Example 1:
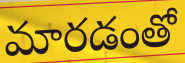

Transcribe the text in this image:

మారడంతో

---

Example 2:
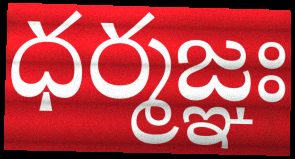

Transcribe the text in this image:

ధర్మజ్ఞః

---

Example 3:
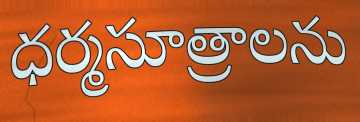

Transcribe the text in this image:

ధర్మసూత్రాలను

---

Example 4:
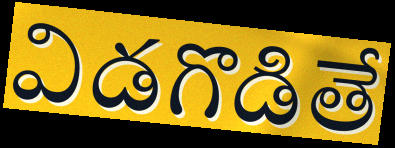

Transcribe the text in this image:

విడగొడితే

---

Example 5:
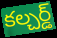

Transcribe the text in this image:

కల్చర్డ్